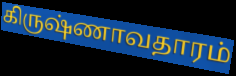
கிருஷ்ணாவதாரம்